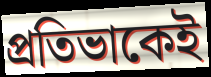
প্রতিভাকেই